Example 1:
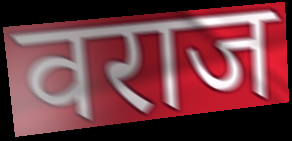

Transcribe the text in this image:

वराज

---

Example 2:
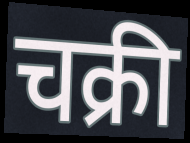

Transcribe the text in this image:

चक्री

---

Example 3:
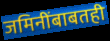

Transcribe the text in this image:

जमिनींबाबतही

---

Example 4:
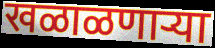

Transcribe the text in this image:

खळाळणाऱ्या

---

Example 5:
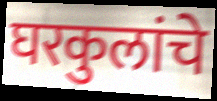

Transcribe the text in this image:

घरकुलांचे